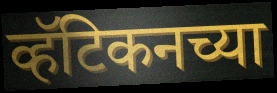
व्हॅटिकनच्या